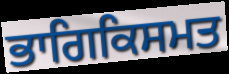
ਭਾਗਿਕਿਸਮਤ